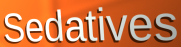
Sedatives